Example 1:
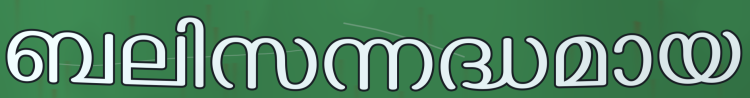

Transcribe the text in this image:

ബലിസന്നദ്ധമായ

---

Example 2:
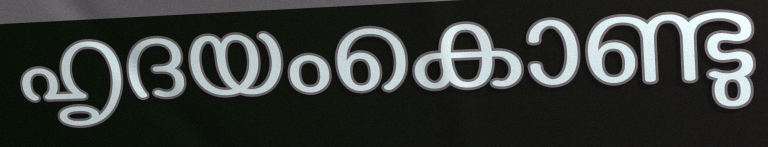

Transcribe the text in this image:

ഹൃദയംകൊണ്ടു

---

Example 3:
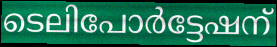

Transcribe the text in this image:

ടെലിപോർട്ടേഷന്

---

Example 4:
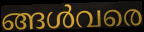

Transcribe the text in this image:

ങ്ങൾവരെ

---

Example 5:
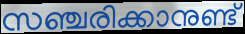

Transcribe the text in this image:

സഞ്ചരിക്കാനുണ്ട്